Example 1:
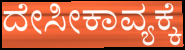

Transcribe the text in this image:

ದೇಸೀಕಾವ್ಯಕ್ಕೆ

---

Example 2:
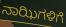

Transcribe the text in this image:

ನಾಝಿಗಳಿಗೆ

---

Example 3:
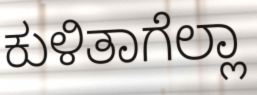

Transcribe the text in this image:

ಕುಳಿತಾಗೆಲ್ಲಾ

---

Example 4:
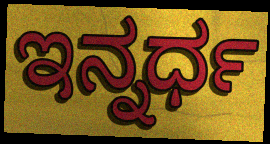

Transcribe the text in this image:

ಇನ್ನರ್ಧ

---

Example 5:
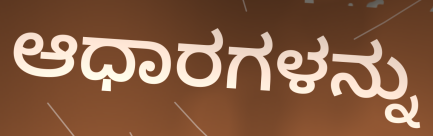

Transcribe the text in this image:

ಆಧಾರಗಳನ್ನು